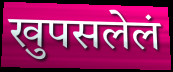
खुपसलेलं